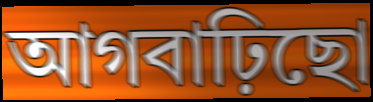
আগবাঢ়িছো